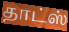
தாட்ஸ்